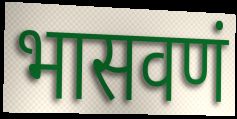
भासवणं